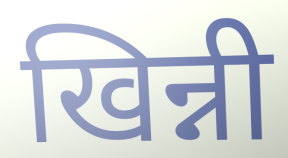
खिन्नी